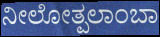
ನೀಲೋತ್ಪಲಾಂಬಾ